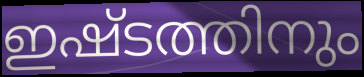
ഇഷ്ടത്തിനും